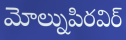
మోల్నుపిరవిర్